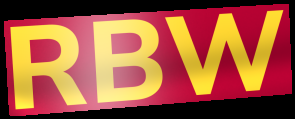
RBW